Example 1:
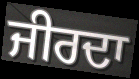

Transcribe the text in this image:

ਜੀਰਦਾ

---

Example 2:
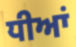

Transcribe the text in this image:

ਧੀਆਂ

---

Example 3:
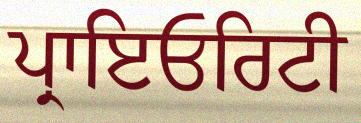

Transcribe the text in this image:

ਪ੍ਰਾਇਓਰਿਟੀ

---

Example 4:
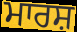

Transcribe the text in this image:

ਮਾਰਸ਼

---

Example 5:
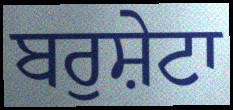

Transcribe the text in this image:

ਬਰੁਸ਼ੇਟਾ